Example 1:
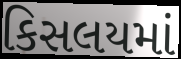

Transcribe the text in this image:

કિસલયમાં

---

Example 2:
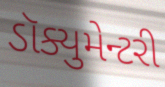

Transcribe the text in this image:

ડૉક્યુમેન્ટરી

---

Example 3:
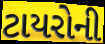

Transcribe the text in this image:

ટાયરોની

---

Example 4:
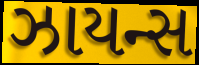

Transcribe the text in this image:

ઝાયન્સ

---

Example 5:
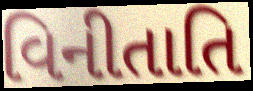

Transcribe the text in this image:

વિનીતાતિ